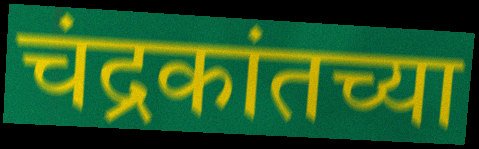
चंद्रकांतच्या